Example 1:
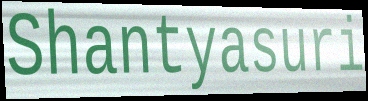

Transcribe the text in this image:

Shantyasuri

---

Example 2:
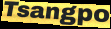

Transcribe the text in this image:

Tsangpo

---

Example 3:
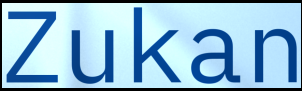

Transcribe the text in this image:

Zukan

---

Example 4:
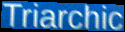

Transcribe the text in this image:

Triarchic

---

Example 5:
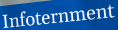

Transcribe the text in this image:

Infoternment